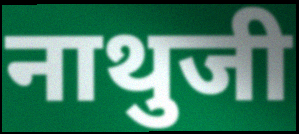
नाथुजी